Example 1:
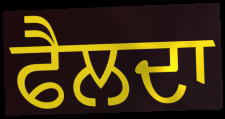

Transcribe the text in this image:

ਫੈਲਦਾ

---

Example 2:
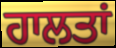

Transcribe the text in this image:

ਹਾਲਤਾਂ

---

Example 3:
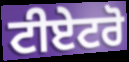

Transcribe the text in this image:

ਟੀਏਟਰੋ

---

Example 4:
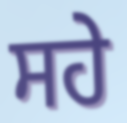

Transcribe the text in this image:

ਸਹੇ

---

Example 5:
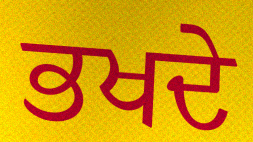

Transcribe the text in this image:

ਭਖਦੇ